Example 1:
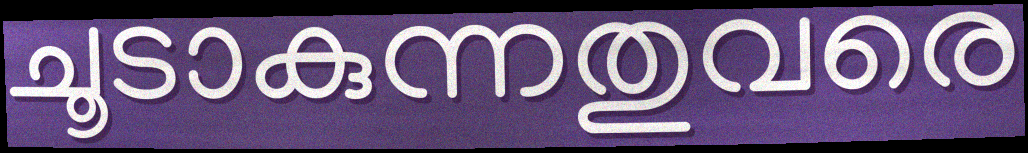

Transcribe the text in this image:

ചൂടാകുന്നതുവരെ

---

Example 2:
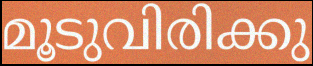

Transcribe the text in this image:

മൂടുവിരിക്കു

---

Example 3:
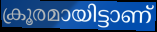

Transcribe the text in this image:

ക്രൂരമായിട്ടാണ്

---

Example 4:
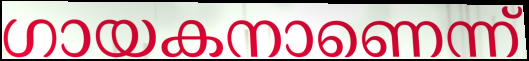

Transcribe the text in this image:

ഗായകനാണെന്ന്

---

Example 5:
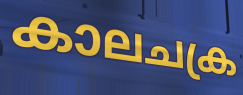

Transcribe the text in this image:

കാലചക്ര